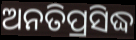
ଅନତିପ୍ରସିଦ୍ଧ